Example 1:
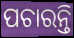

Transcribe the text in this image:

ପଚାରନ୍ତି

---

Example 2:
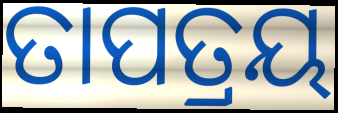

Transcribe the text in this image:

ତାପତ୍ରୟ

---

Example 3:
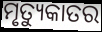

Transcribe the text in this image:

ମୃତ୍ୟୁକାତର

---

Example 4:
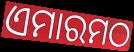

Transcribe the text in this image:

ଏମାରମଠ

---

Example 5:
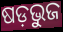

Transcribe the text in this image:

ଷଡ଼ଭୁଜ